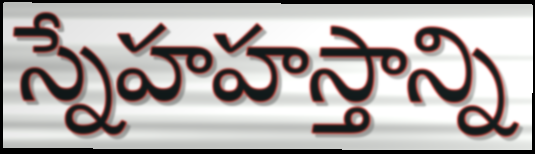
స్నేహహస్తాన్ని